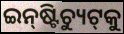
ଇନ୍‌ଷ୍ଟିଚ୍ୟୁଟ୍‌କୁ